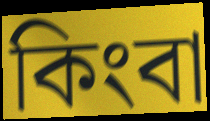
কিংবা